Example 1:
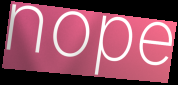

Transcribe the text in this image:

nope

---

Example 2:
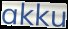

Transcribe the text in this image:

akku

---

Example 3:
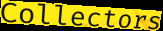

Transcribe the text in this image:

Collectors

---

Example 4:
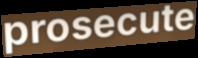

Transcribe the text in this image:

prosecute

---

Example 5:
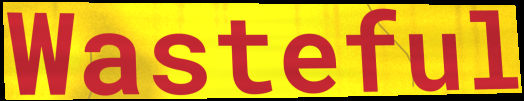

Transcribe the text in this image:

Wasteful